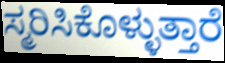
ಸ್ಮರಿಸಿಕೊಳ್ಳುತ್ತಾರೆ